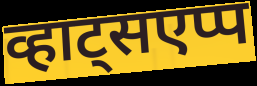
व्हाट्सएप्प